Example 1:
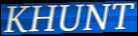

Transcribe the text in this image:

KHUNT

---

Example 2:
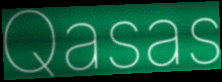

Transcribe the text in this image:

Qasas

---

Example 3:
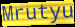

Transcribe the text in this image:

Mrutyu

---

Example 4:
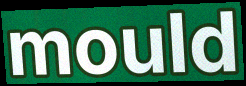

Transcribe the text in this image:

mould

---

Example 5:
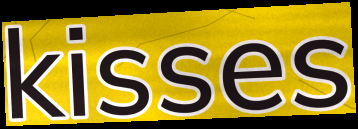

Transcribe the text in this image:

kisses